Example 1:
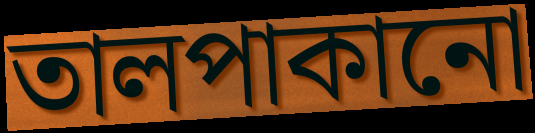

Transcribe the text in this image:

তালপাকানো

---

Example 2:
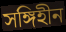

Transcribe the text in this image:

সঙ্গিহীন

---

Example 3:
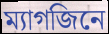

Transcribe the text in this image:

ম্যাগজিনে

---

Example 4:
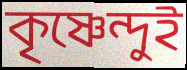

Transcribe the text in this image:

কৃষ্ণেন্দুই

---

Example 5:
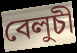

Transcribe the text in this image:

বেলুচী